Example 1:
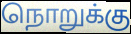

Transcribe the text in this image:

நொறுக்கு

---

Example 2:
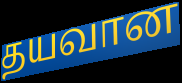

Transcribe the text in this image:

தயவான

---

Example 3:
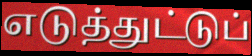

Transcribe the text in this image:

எடுத்துட்டுப்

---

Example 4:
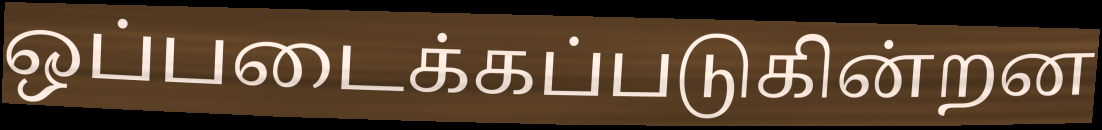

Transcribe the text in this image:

ஒப்படைக்கப்படுகின்றன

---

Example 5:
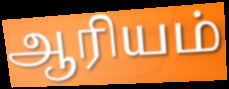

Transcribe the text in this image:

ஆரியம்